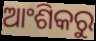
ଆଂଶିକରୁ